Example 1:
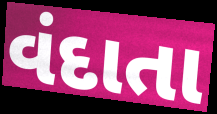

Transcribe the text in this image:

વંદાતા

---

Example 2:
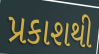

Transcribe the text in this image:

પ્રકાશથી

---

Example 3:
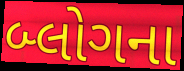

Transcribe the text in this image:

બ્લોગના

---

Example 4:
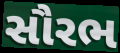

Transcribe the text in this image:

સૌરભ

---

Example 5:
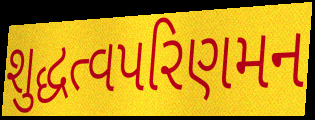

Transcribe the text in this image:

શુદ્ધત્વપરિણમન